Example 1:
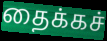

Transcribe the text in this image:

தைக்கச்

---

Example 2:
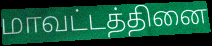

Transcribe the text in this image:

மாவட்டத்தினை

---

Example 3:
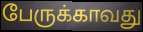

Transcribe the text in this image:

பேருக்காவது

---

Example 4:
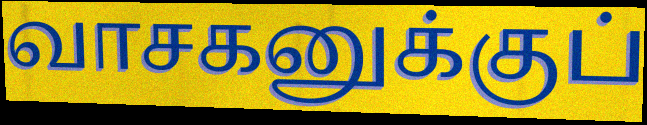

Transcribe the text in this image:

வாசகனுக்குப்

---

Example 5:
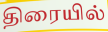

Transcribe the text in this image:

திரையில்